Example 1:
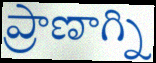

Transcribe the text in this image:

ప్రాణాగ్ని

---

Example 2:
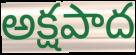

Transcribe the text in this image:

అక్షపాద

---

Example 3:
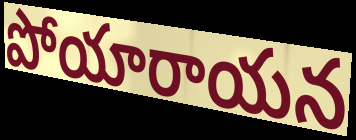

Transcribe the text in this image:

పోయారాయన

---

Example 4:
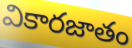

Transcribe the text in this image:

వికారజాతం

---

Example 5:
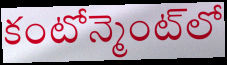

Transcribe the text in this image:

కంటోన్మెంట్‌లో